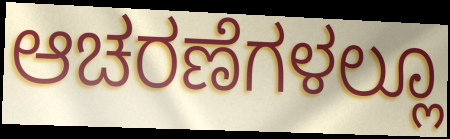
ಆಚರಣೆಗಳಲ್ಲೂ